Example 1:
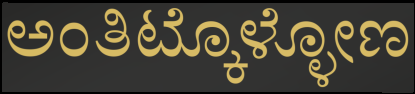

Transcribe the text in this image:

ಅಂತಿಟ್ಕೊಳ್ಳೋಣ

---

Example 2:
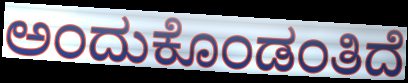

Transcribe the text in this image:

ಅಂದುಕೊಂಡಂತಿದೆ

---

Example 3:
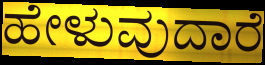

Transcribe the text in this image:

ಹೇಳುವುದಾರೆ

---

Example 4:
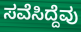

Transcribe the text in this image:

ಸವೆಸಿದ್ದೆವು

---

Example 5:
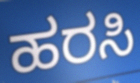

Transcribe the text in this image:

ಹರಸಿ